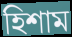
হিশাম